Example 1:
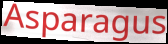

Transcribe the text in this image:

Asparagus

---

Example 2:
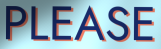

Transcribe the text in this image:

PLEASE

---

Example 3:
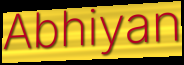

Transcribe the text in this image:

Abhiyan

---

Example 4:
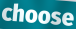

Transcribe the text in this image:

choose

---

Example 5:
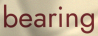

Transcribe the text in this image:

bearing